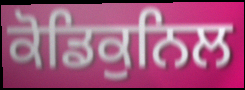
ਕੋਡਿਕੁਨਿਲ